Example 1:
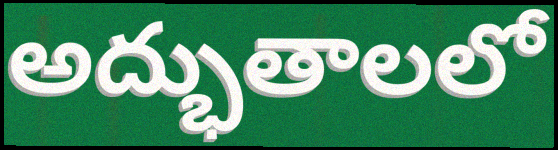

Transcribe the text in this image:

అద్భుతాలలో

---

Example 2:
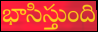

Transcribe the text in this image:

భాసిస్తుంది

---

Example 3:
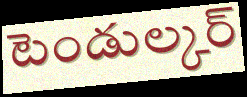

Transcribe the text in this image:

టెండుల్కర్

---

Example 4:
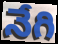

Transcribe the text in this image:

నేగి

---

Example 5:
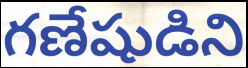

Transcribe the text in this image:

గణేషుడిని